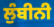
ਲੁੰਬੀਨੀ